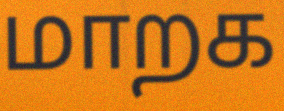
மாறக